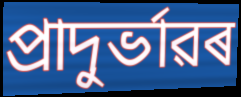
প্ৰাদুৰ্ভাৱৰ